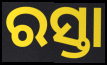
ରସ୍ତା